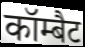
कॉम्बैट